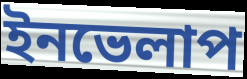
ইনভেলাপ